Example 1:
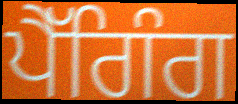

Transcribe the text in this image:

ਪੈੱਗਿੰਗ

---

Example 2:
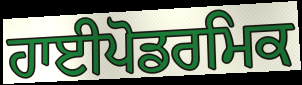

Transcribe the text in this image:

ਹਾਈਪੋਡਰਮਿਕ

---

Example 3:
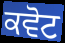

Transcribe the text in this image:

ਕਵੋਟ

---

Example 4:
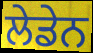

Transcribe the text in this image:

ਲੇਡੇਨ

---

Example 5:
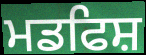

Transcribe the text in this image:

ਮਡਫਿਸ਼